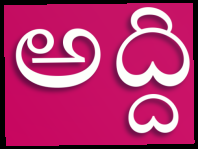
అద్ది